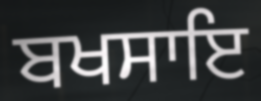
ਬਖਸਾਇ